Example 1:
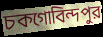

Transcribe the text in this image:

চকগোবিন্দপুর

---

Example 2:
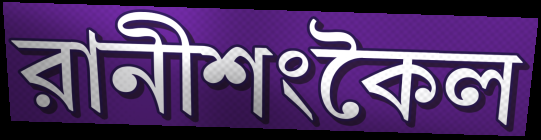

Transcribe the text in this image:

রানীশংকৈল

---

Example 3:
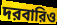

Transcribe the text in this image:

দরবারিও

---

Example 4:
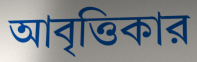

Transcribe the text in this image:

আবৃত্তিকার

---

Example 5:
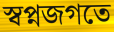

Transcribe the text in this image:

স্বপ্নজগতে